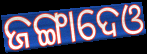
ଜଙ୍ଗାଦେଓ